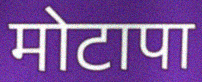
मोटापा